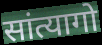
सांत्यागो